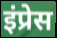
इंप्रेस